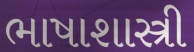
ભાષાશાસ્ત્રી